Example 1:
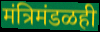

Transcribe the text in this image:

मंत्रिमंडळही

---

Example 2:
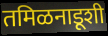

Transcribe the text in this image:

तमिळनाडूशी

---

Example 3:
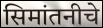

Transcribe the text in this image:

सिमांतनीचे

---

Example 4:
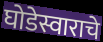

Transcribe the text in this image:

घोडेस्वाराचे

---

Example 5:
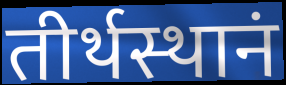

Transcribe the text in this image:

तीर्थस्थानं